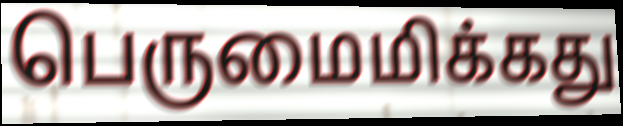
பெருமைமிக்கது